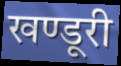
खण्डूरी